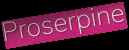
Proserpine